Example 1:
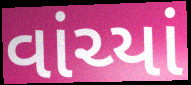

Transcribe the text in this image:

વાંચ્યાં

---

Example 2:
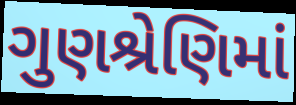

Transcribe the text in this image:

ગુણશ્રેણિમાં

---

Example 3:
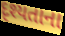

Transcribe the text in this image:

દૃશ્યતાના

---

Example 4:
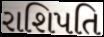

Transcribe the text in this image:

રાશિપતિ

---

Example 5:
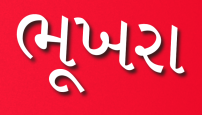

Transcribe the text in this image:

ભૂખરા